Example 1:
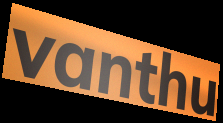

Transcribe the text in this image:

vanthu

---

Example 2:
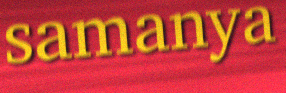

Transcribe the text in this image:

samanya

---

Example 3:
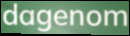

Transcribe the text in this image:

dagenom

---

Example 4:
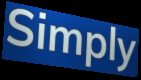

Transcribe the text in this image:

Simply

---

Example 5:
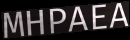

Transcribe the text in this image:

MHPAEA